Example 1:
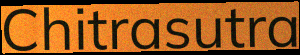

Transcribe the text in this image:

Chitrasutra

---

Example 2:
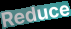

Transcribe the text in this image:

Reduce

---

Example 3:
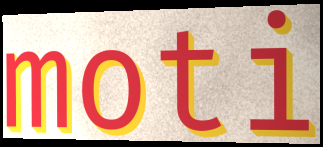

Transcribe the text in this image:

moti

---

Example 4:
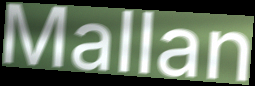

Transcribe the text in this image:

Mallan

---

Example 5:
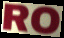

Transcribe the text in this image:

RO